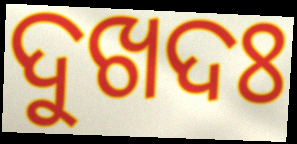
ଦୁଖଦଃ